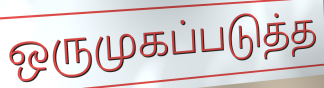
ஒருமுகப்படுத்த